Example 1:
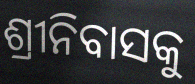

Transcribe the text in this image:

ଶ୍ରୀନିବାସକୁ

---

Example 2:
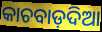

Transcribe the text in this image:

କାଚବାଡ଼ଦିଆ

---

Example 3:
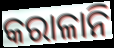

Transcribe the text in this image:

କରାଳାନି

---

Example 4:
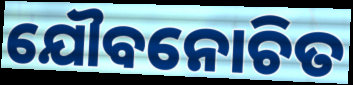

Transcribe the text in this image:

ଯୌବନୋଚିତ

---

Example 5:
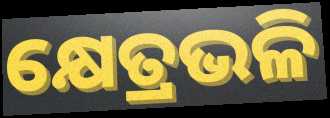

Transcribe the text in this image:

କ୍ଷେତ୍ରଭଳି